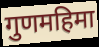
गुणमहिमा